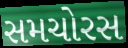
સમચોરસ